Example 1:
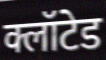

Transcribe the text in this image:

क्लॉटेड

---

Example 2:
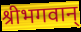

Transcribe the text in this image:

श्रीभगवान्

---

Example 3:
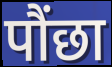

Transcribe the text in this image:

पौंछा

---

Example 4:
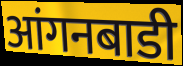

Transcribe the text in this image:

आंगनबाडी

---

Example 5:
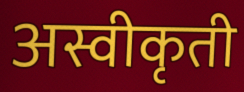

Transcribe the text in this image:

अस्वीकृती